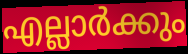
എല്ലാർക്കും